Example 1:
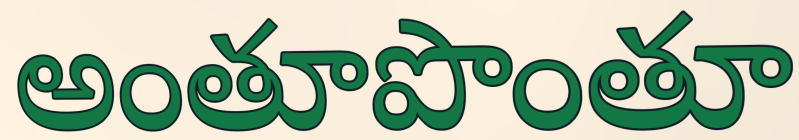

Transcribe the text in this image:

అంతూపొంతూ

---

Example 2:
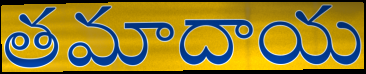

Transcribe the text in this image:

తమాదాయ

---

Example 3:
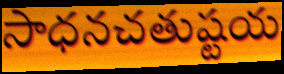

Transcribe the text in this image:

సాధనచతుష్టయ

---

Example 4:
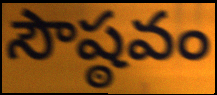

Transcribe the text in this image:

సౌష్ఠవం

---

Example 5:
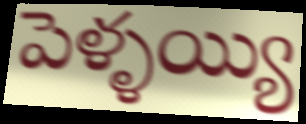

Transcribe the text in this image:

పెళ్ళయ్యి